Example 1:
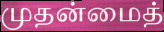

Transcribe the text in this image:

முதன்மைத்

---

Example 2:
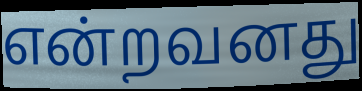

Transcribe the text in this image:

என்றவனது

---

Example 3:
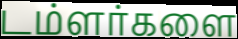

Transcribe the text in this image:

டம்ளர்களை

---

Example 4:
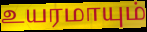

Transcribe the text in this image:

உயரமாயும்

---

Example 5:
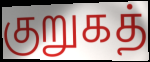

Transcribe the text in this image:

குறுகத்